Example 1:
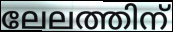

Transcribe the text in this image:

ലേലത്തിന്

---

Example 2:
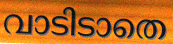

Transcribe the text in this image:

വാടിടാതെ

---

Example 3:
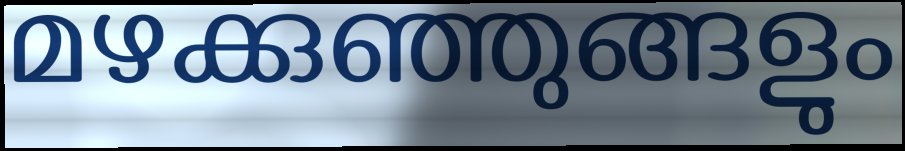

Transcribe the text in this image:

മഴക്കുഞ്ഞുങ്ങളും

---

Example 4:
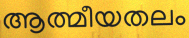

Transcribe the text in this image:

ആത്മീയതലം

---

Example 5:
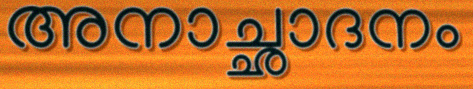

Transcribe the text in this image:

അനാച്ഛാദനം